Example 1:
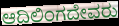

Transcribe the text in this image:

ಆದಿಲಿಂಗದೇವರು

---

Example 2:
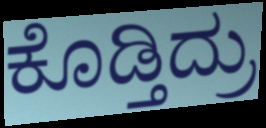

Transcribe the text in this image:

ಕೊಡ್ತಿದ್ರು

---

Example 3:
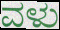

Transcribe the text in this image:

ವಳು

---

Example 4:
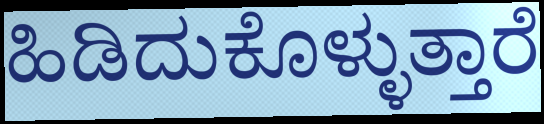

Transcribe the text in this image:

ಹಿಡಿದುಕೊಳ್ಳುತ್ತಾರೆ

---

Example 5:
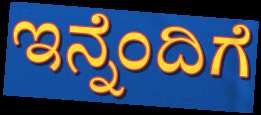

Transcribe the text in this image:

ಇನ್ನೆಂದಿಗೆ